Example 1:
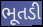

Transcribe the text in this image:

ભૂતડી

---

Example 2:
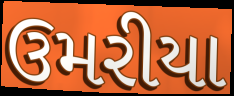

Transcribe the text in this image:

ઉમરીયા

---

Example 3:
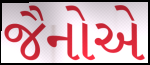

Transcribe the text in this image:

જૈનોએ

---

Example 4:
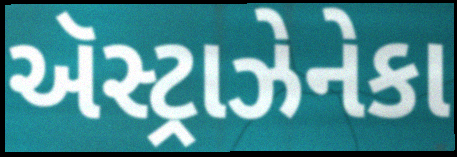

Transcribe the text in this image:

ઍસ્ટ્રાઝેનેકા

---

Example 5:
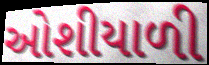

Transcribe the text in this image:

ઓશીયાળી